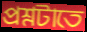
প্রশ্নটাতে